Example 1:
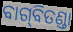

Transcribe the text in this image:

ବାଗ୍‍ବିତଣ୍ଡା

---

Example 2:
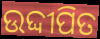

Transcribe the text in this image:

ଉଦ୍ଦୀପିତ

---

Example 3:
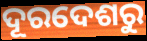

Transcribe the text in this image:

ଦୂରଦେଶରୁ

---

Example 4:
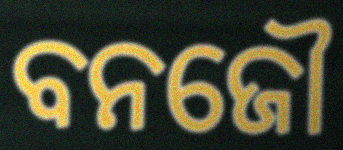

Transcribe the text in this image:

ବନଜୌ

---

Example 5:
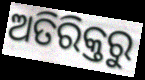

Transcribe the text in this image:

ଅତିରିକ୍ତରୁ